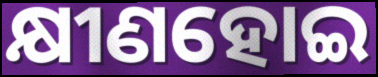
କ୍ଷୀଣହୋଇ